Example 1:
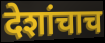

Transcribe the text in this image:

देशांचाच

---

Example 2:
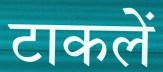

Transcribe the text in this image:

टाकलें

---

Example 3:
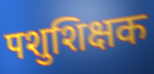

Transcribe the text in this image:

पशुशिक्षक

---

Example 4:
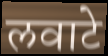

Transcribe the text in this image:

लवाटे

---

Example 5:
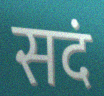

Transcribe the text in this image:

सदं